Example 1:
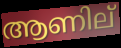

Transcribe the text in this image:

ആണില്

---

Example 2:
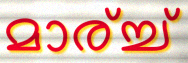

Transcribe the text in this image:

മാര്ച്ച്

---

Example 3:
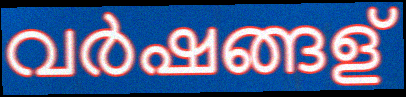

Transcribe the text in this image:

വർഷങ്ങള്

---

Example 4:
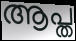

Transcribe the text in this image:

ആപ്ത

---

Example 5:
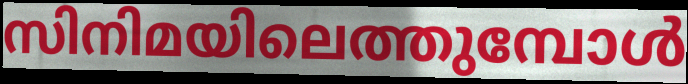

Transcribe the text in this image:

സിനിമയിലെത്തുമ്പോൾ